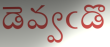
డెవ్వఁడొ